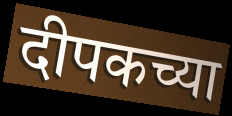
दीपकच्या